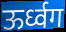
ऊर्ध्वग